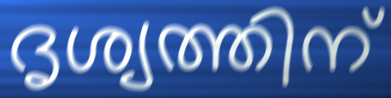
ദൃശ്യത്തിന്